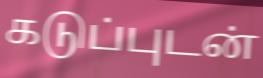
கடுப்புடன்